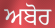
ਅਬੋਰ